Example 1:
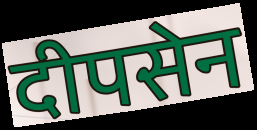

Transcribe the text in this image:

दीपसेन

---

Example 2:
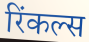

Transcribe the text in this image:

रिंकल्स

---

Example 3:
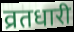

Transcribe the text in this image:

व्रतधारी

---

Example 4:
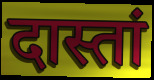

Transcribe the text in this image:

दास्तां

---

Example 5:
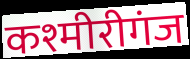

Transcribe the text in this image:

कश्मीरीगंज